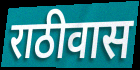
राठीवास